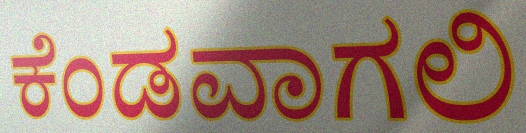
ಕೆಂಡವಾಗಲಿ